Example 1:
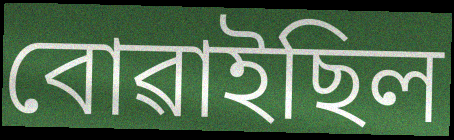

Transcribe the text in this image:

বোৱাইছিল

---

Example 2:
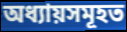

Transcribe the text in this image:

অধ্যায়সমূহত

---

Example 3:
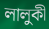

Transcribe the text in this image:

লালুকী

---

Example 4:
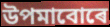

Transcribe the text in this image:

উপমাবোৰে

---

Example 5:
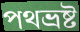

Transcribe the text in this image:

পথভ্ৰষ্ট